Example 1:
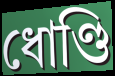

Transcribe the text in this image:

ধোণ্ডি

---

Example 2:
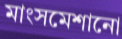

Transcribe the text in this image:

মাংসমেশানো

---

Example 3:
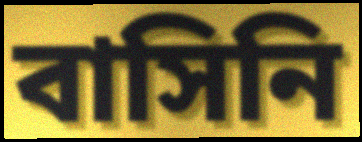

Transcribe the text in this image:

বাসিনি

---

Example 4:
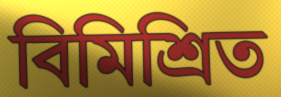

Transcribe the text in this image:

বিমিশ্রিত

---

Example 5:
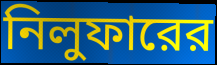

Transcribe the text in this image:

নিলুফারের